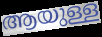
ആയുള്ള